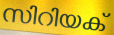
സിറിയക്